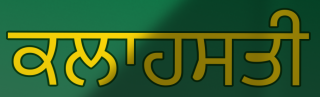
ਕਲਾਹਸਤੀ